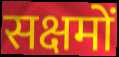
सक्षमों